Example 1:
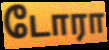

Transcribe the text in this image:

டோரா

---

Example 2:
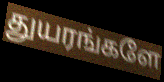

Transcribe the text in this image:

துயரங்களே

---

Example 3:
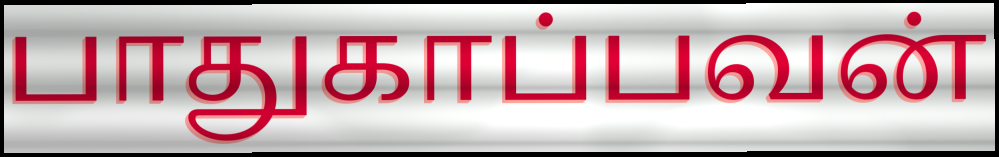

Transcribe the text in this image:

பாதுகாப்பவன்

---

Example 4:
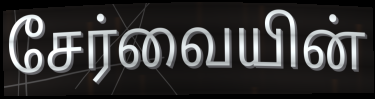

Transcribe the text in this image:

சேர்வையின்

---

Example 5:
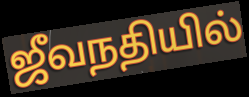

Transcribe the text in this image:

ஜீவநதியில்